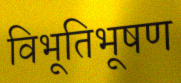
विभूतिभूषण